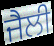
ਜੈਲੀ